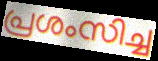
പ്രശംസിച്ച